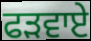
ਫੜਵਾਏ